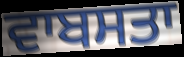
ਵਾਬਸਤਾ